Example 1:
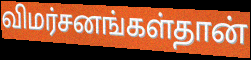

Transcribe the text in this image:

விமர்சனங்கள்தான்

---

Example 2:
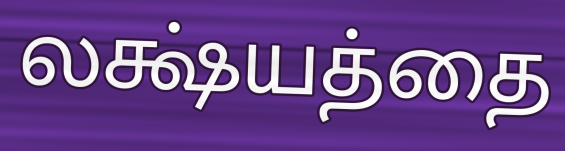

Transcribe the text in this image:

லக்ஷ்யத்தை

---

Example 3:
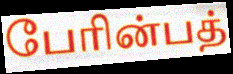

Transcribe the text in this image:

பேரின்பத்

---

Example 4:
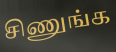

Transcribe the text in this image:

சிணுங்க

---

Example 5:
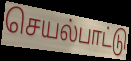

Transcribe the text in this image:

செயல்பாட்டு